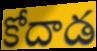
కోదాడ